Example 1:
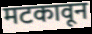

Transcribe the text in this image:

मटकावून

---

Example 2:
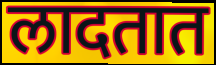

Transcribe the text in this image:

लादतात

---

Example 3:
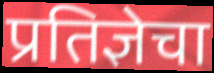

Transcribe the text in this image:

प्रतिज्ञेचा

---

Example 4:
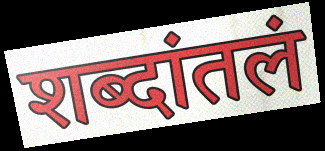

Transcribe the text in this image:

शब्दांतलं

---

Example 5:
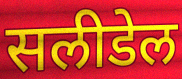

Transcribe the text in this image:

सलीडेल